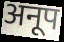
अनूप